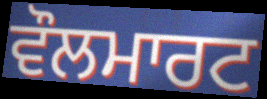
ਵੌਲਮਾਰਟ